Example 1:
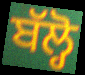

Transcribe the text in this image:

ਬੱਲ੍ਹੋ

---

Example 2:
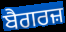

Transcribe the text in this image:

ਬੈਗਰਜ਼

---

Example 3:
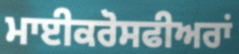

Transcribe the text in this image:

ਮਾਈਕਰੋਸਫੀਅਰਾਂ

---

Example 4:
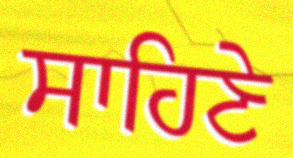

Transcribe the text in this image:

ਸਾਹਿਣੇ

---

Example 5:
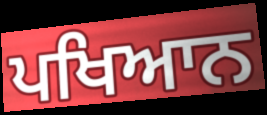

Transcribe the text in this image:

ਪਖਿਆਨ